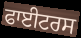
ਫਾਈਟਰਸ